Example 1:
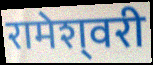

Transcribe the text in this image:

रामेश्वरी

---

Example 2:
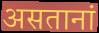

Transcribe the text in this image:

असतानां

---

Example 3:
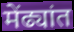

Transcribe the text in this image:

मेंढ्यांत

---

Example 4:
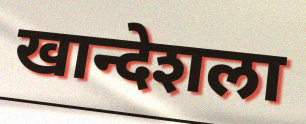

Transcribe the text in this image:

खान्देशला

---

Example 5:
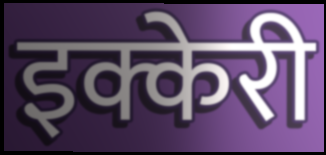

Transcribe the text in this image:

इक्केरी